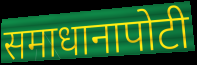
समाधानापोटी